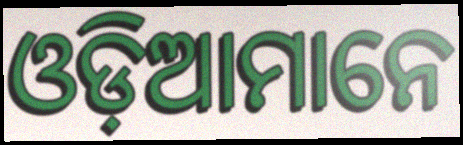
ଓଡ଼ିଆମାନେ